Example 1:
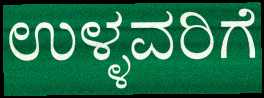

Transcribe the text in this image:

ಉಳ್ಳವರಿಗೆ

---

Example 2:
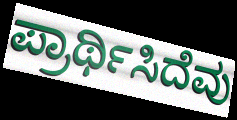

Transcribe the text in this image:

ಪ್ರಾರ್ಥಿಸಿದೆವು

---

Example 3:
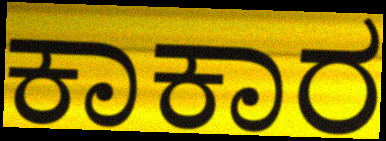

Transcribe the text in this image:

ಕಾಕಾರ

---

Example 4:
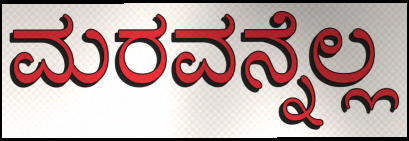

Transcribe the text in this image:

ಮರವನ್ನೆಲ್ಲ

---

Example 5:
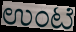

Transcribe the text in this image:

ಉಂಟೆ